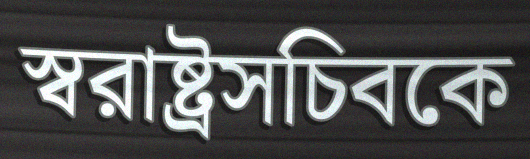
স্বরাষ্ট্রসচিবকে